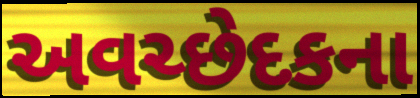
અવચ્છેદકના